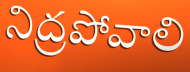
నిద్రపోవాలి